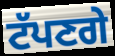
ਟੱਪਣਗੇ